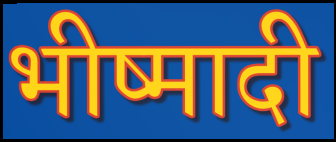
भीष्मादी